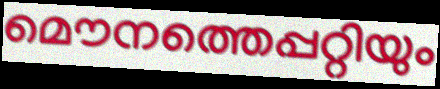
മൌനത്തെപ്പറ്റിയും